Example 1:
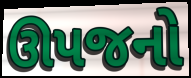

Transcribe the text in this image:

ઊપજનો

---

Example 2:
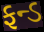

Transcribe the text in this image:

ફન્ડ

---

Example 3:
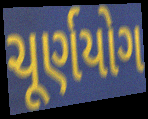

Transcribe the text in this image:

ચૂર્ણયોગ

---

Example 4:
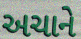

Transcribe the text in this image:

અચાને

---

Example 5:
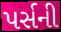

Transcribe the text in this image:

પર્સની